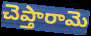
చెప్తారామె